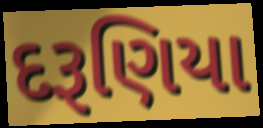
દરૂણિયા